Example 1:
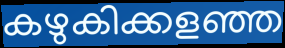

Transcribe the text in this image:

കഴുകിക്കളഞ്ഞ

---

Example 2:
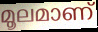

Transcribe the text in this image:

മൂലമാണ്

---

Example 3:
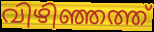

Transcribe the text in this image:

വിഴിഞ്ഞത്ത്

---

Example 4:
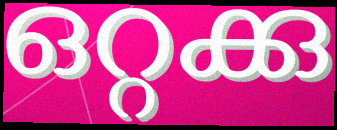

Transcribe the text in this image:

ഒറ്റക്കു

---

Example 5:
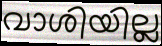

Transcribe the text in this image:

വാശിയില്ല